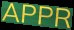
APPR